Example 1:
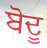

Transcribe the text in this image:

ਬੋਦੂ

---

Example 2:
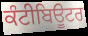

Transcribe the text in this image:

ਕੰਟੀਬਿਊਟਰ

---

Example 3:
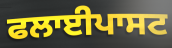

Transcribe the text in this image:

ਫਲਾਈਪਾਸਟ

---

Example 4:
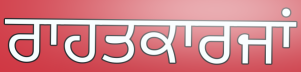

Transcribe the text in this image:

ਰਾਹਤਕਾਰਜਾਂ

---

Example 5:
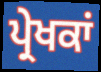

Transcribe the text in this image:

ਪ੍ਰੇਖਕਾਂ